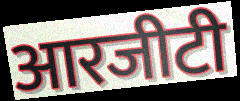
आरजीटी